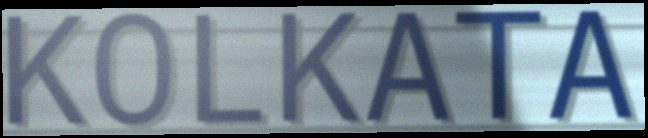
KOLKATA